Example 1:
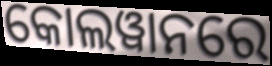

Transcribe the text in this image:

କୋଲୱାନରେ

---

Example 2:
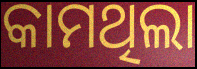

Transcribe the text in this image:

କାମଥିଲା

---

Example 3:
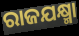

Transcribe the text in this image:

ରାଜଯକ୍ଷ୍ମା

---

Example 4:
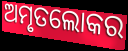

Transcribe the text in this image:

ଅମୃତଲୋକର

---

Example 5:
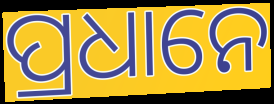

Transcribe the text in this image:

ପ୍ରଧାନେ